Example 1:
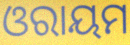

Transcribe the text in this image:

ଓରାୟମ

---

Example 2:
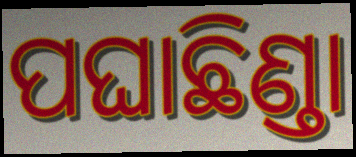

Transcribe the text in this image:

ପଘାଛିଣ୍ଡା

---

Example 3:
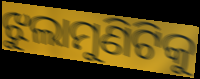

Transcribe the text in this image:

ଝୁଲାମୁଣିଟିକୁ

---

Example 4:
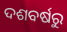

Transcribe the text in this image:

ଦଶବର୍ଷରୁ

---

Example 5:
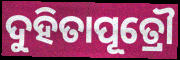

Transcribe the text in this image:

ଦୁହିତାପୂତ୍ରୌ